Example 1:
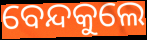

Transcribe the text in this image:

ବେନ୍ଦକୁଲେ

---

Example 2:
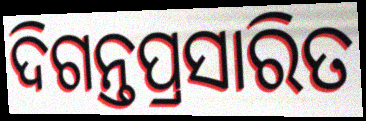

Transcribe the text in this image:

ଦିଗନ୍ତପ୍ରସାରିତ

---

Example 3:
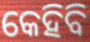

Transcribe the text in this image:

କେହିବି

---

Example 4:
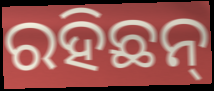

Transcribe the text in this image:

ରହିଛନ୍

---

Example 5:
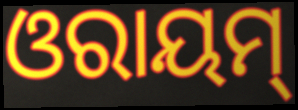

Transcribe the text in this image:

ଓରାୟମ୍